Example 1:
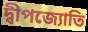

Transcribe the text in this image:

দ্বীপজ্যোতি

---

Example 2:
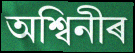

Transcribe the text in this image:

অশ্বিনীৰ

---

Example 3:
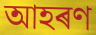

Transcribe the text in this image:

আহৰণ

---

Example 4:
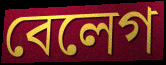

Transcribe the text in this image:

বেলেগ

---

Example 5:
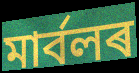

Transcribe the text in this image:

মাৰ্বলৰ